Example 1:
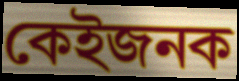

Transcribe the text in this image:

কেইজনক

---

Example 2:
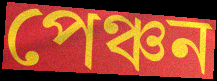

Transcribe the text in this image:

পেঞ্চন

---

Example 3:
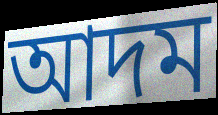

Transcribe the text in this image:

আদম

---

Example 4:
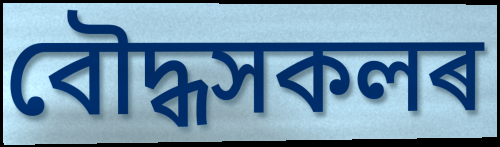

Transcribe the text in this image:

বৌদ্ধসকলৰ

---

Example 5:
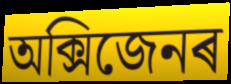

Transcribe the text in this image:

অক্সিজেনৰ